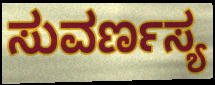
ಸುವರ್ಣಸ್ಯ